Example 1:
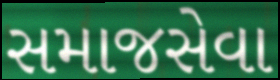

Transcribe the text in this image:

સમાજસેવા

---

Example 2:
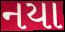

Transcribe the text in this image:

નયા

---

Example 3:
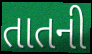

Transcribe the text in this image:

તાતની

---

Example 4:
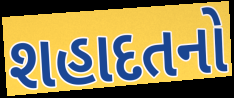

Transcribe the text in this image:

શહાદતનો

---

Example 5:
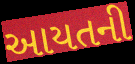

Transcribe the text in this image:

આયતની